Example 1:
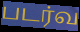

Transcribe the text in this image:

படர்வ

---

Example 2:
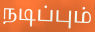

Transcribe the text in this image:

நடிப்பும்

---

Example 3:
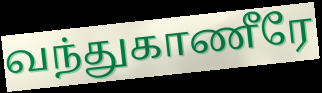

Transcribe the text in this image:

வந்துகாணீரே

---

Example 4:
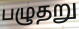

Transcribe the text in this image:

பழுதறு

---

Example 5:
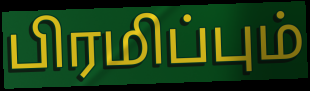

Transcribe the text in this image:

பிரமிப்பும்